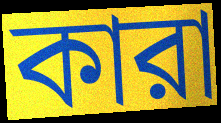
কারা